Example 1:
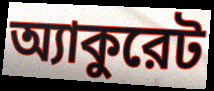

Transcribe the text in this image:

অ্যাকুরেট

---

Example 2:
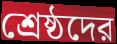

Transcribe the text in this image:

শ্রেষ্ঠদের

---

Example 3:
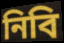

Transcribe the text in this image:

নিবি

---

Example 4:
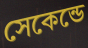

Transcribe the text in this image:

সেকেন্ডে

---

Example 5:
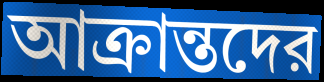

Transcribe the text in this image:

আক্রান্তদের